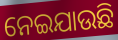
ନେଇଯାଉଛି